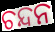
ଚନ୍ଦନ